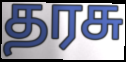
தரசு